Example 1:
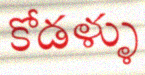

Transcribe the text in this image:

కోడళ్ళు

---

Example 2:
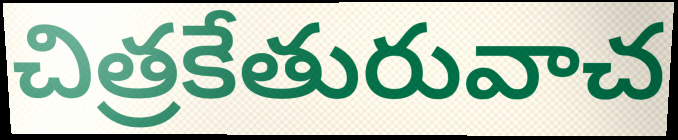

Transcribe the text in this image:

చిత్రకేతురువాచ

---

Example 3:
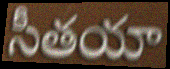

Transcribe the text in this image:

సీతయా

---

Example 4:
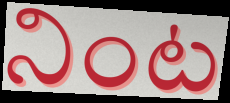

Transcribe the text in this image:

నింట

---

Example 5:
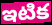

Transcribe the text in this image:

ఇటిక